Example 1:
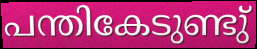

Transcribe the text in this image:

പന്തികേടുണ്ടു്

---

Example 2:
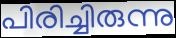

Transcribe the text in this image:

പിരിച്ചിരുന്നു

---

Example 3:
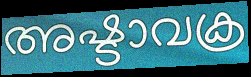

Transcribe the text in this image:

അഷ്ടാവക്ര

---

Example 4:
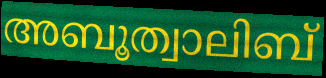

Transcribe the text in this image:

അബൂത്വാലിബ്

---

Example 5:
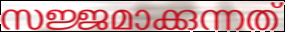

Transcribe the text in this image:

സജ്ജമാക്കുന്നത്